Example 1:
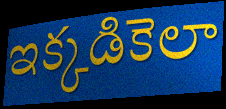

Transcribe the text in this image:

ఇక్కడికెలా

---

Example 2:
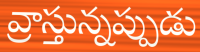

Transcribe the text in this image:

వ్రాస్తున్నప్పుడు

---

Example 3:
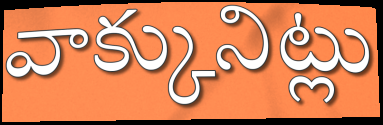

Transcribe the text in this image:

వాక్కునిట్లు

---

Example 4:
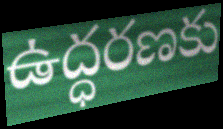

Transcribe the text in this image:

ఉద్ధరణకు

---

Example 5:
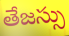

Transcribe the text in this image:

తేజస్సు